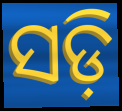
ସଡ଼ି